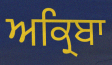
ਅਕ੍ਰਿਬਾ